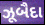
ઝૂબૈદા